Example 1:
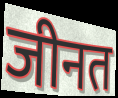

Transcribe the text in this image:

जीनत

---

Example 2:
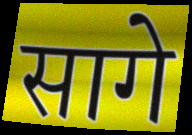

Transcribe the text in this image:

सागे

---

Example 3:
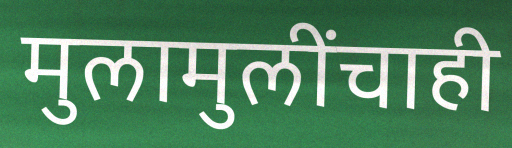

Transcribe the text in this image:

मुलामुलींचाही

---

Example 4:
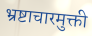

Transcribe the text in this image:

भ्रष्टाचारमुक्ती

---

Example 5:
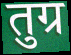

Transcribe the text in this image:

तुग्र